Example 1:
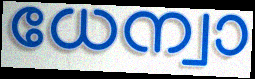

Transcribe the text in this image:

ധേന്വാ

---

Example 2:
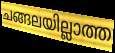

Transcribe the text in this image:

ചങ്ങലയില്ലാത്ത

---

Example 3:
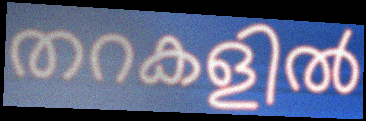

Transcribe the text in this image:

തറകളിൽ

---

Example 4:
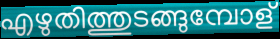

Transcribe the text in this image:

എഴുതിത്തുടങ്ങുമ്പോള്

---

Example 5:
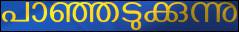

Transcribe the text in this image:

പാഞ്ഞടുക്കുന്നു